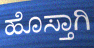
ಹೊಸ್ತಾಗಿ